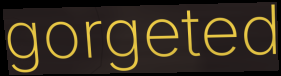
gorgeted